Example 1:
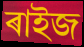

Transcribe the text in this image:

ৰাইজ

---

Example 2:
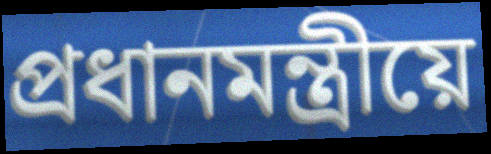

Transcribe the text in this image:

প্ৰধানমন্ত্ৰীয়ে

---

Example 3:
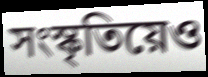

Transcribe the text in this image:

সংস্কৃতিয়েও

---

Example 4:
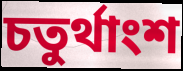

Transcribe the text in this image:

চতুৰ্থাংশ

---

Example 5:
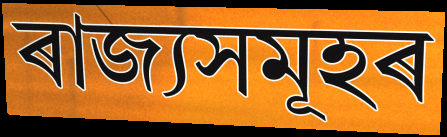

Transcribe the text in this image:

ৰাজ্যসমূহৰ